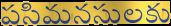
పసిమనసులకు